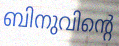
ബിനുവിന്റെ